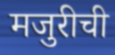
मजुरीची